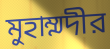
মুহাম্মদীর